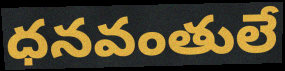
ధనవంతులే